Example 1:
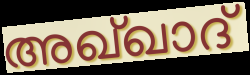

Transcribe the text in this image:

അഖ്ഖാദ്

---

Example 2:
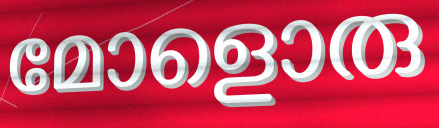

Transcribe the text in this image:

മോളൊരു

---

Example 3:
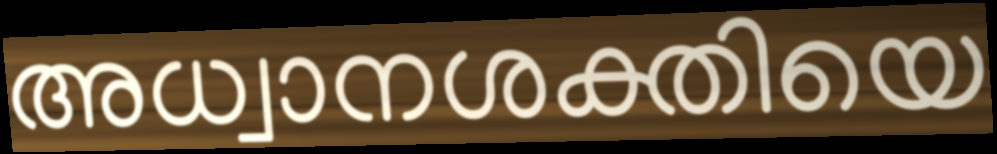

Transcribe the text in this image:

അധ്വാനശക്തിയെ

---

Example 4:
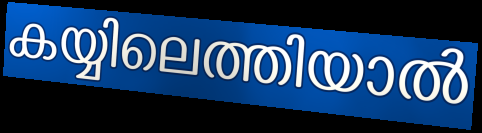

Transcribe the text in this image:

കയ്യിലെത്തിയാൽ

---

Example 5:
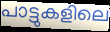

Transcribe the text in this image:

പാട്ടുകളിലെ